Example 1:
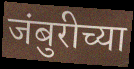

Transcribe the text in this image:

जंबुरीच्या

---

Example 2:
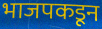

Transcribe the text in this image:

भाजपकडून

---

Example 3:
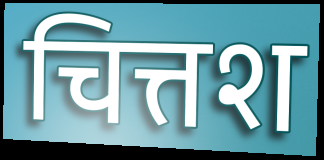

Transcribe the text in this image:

चित्तश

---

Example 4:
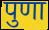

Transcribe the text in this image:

पुणा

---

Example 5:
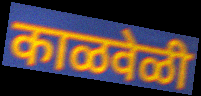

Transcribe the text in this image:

काळवेळी